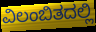
ವಿಲಂಬಿತದಲ್ಲಿ